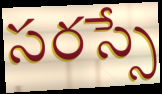
సరస్సే